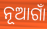
ନୂଆଗାଁ